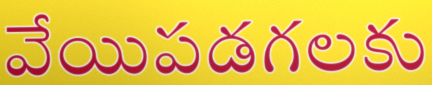
వేయిపడగలకు